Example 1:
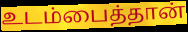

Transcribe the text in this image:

உடம்பைத்தான்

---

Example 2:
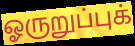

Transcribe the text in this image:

ஓருறுப்புக்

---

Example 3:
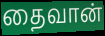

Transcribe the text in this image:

தைவான்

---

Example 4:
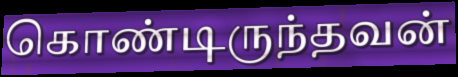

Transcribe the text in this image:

கொண்டிருந்தவன்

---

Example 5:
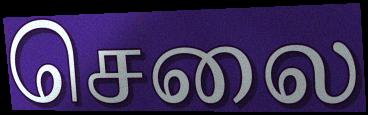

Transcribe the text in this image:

செலை